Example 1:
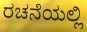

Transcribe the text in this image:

ರಚನೆಯಲ್ಲಿ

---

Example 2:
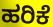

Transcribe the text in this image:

ಹರಿಕೆ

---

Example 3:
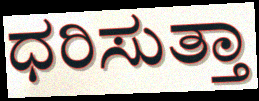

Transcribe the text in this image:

ಧರಿಸುತ್ತಾ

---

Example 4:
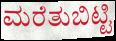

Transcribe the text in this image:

ಮರೆತುಬಿಟ್ಟಿ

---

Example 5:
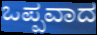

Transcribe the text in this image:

ಒಪ್ಪವಾದ